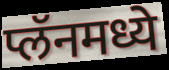
प्लॅनमध्ये